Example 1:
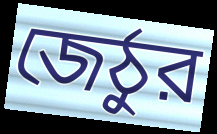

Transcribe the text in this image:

জেঠুর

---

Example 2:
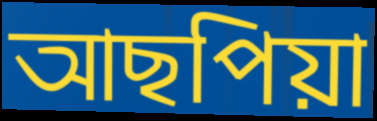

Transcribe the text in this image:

আছপিয়া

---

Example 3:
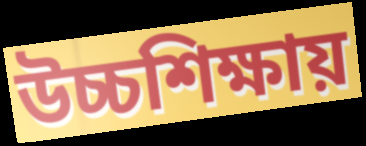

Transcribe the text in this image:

উচ্চশিক্ষায়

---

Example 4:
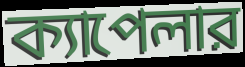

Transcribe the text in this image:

ক্যাপেলার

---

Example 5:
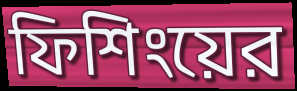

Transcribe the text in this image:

ফিশিংয়ের